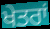
ਖੇਤਰਾਂ